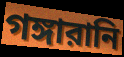
গঙ্গারানি